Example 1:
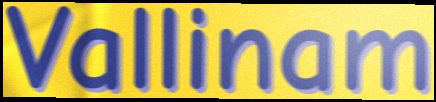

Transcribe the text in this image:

Vallinam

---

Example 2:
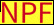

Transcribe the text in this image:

NPF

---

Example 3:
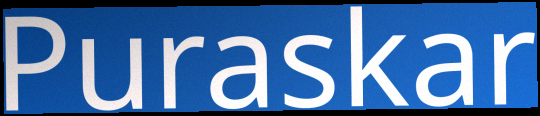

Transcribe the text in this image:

Puraskar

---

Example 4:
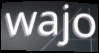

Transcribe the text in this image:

wajo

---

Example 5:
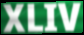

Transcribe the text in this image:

XLIV